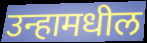
उन्हामधील